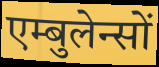
एम्बुलेन्सों